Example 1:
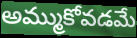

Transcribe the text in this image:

అమ్ముకోవడమే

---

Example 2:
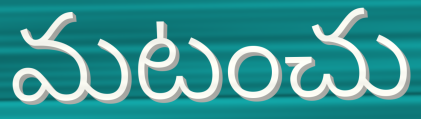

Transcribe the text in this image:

మటంచు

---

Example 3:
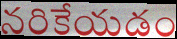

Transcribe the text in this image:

నరికేయడం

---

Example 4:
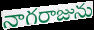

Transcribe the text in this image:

నాగరాజును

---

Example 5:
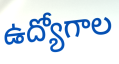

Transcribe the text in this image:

ఉద్యోగాల